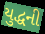
યુદ્ધની